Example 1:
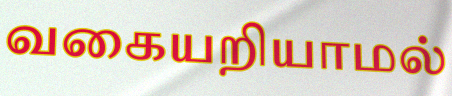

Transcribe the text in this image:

வகையறியாமல்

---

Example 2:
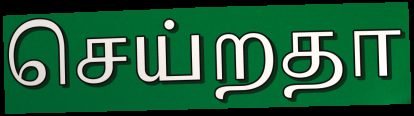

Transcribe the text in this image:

செய்றதா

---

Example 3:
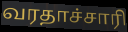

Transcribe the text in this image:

வரதாச்சாரி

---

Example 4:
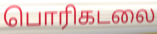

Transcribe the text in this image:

பொரிகடலை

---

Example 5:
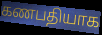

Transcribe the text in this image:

கணபதியாக